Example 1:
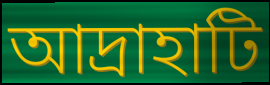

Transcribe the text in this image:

আদ্রাহাটি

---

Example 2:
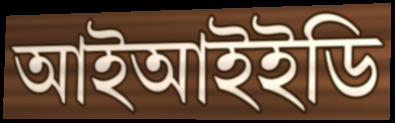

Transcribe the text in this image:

আইআইইডি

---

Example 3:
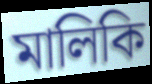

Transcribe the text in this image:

মালিকি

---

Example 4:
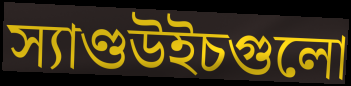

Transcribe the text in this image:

স্যাণ্ডউইচগুলো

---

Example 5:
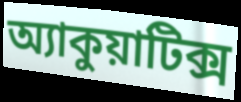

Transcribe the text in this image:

অ্যাকুয়াটিক্স